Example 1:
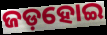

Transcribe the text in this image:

ଜଡ଼ହୋଇ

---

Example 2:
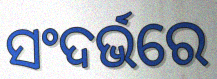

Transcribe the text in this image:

ସଂଦର୍ଭରେ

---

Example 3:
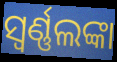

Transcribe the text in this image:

ସ୍ବର୍ଣ୍ଣଲଙ୍କା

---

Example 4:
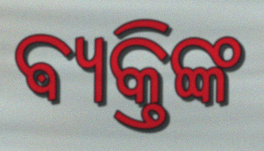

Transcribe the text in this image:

ଵ୍ୟକ୍ତିଙ୍କ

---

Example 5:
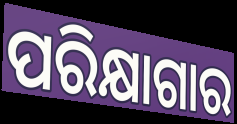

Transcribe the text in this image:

ପରିକ୍ଷାଗାର